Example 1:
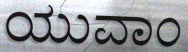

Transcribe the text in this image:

ಯುವಾಂ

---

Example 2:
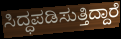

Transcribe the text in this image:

ಸಿದ್ಧಪಡಿಸುತ್ತಿದ್ದಾರೆ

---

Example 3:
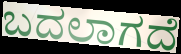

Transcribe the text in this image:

ಬದಲಾಗದೆ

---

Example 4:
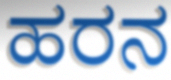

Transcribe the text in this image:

ಹರನ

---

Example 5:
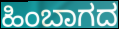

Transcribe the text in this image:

ಹಿಂಬಾಗದ